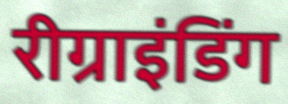
रीग्राइंडिंग